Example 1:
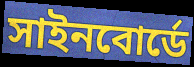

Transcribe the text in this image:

সাইনবোর্ডে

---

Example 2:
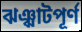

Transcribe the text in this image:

ঝঞ্ঝাটপূর্ণ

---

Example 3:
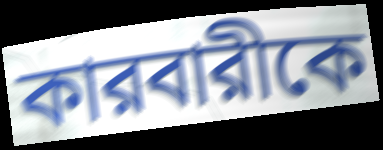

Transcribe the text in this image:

কারবারীকে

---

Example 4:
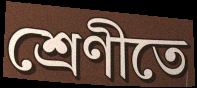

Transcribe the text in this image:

শ্রেণীতে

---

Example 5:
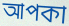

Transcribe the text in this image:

আপকা